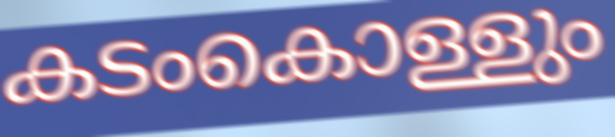
കടംകൊള്ളും